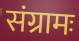
संग्रामः